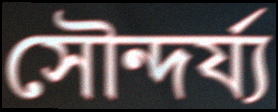
সৌন্দৰ্য্য